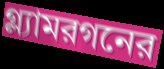
গ্ল্যামরগনের